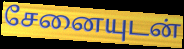
சேனையுடன்